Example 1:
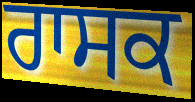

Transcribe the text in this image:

ਰਾਸਕ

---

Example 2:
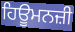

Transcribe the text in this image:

ਹਿਊਮਨਜ਼ੀ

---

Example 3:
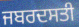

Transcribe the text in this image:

ਜਬਰਦਸਤੀ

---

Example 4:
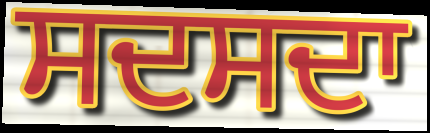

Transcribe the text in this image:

ਸਦਸਦਾ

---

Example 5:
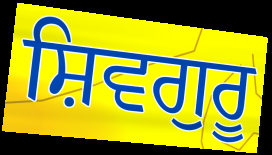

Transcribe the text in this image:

ਸ਼ਿਵਗੁਰੂ